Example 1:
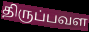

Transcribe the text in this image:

திருப்பவள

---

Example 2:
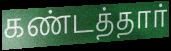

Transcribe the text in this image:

கண்டத்தார்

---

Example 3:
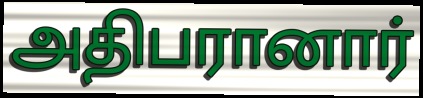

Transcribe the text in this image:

அதிபரானார்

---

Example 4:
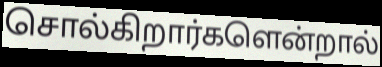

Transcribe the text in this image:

சொல்கிறார்களென்றால்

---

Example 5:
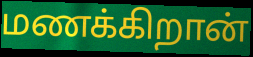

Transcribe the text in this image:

மணக்கிறான்